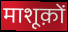
माशूक़ों